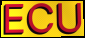
ECU